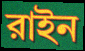
রাইন